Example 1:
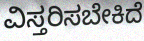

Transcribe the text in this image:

ವಿಸ್ತರಿಸಬೇಕಿದೆ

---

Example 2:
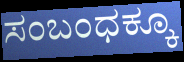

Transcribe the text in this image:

ಸಂಬಂಧಕ್ಕೂ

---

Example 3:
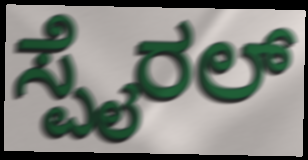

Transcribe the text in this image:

ಸ್ಪೈರಲ್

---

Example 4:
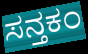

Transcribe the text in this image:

ಸನ್ತಕಂ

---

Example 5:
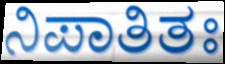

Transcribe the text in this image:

ನಿಪಾತಿತಃ